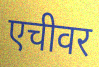
एचीवर